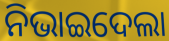
ନିଭାଇଦେଲା